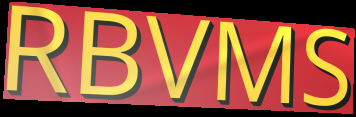
RBVMS